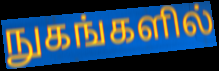
நுகங்களில்